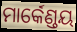
ମାର୍କେଣ୍ଡୟ